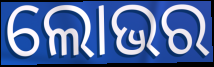
ଲୋଭର